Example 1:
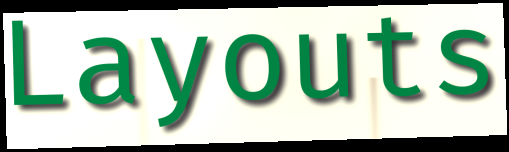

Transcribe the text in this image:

Layouts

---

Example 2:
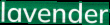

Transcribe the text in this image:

lavender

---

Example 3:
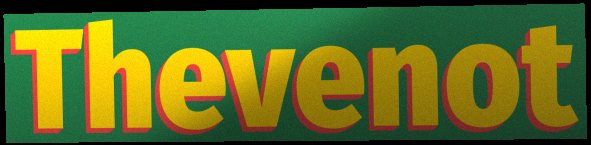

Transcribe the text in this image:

Thevenot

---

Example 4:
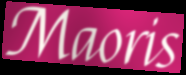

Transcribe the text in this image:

Maoris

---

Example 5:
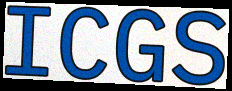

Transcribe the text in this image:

ICGS